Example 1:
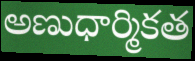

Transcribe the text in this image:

అణుధార్మికత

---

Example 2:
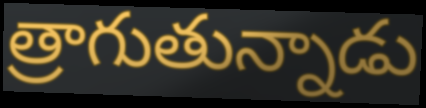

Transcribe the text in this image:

త్రాగుతున్నాడు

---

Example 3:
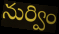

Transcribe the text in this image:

నుర్విం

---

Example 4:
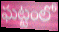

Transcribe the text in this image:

ఘట్టంలో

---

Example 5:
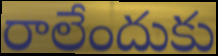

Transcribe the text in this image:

రాలేందుకు